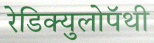
रेडिक्युलोपॅथी